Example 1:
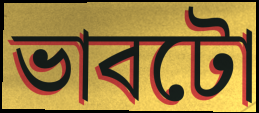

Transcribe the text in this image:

ভাবটো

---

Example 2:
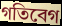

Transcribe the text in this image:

গতিবেগ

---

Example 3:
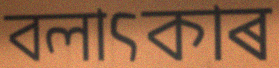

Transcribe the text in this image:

বলাৎকাৰ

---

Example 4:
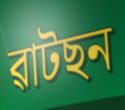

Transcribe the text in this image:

ৱাটছন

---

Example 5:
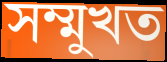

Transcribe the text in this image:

সম্মুখত